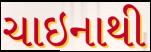
ચાઇનાથી